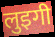
लुइगी